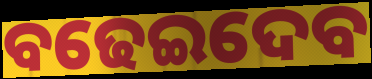
ବଢେଇଦେବ